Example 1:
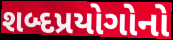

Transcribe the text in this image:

શબ્દપ્રયોગોનો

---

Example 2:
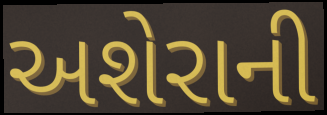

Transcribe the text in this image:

અશેરાની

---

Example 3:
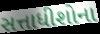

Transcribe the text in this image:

સત્તાધીશોના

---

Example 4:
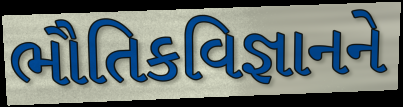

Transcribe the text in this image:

ભૌતિકવિજ્ઞાનને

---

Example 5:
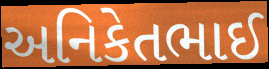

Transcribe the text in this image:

અનિકેતભાઈ